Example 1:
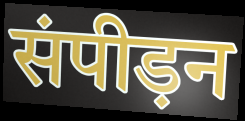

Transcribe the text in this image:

संपीड़न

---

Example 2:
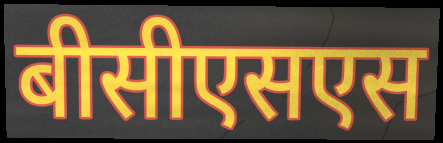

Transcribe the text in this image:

बीसीएसएस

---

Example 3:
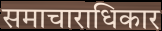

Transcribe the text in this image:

समाचाराधिकार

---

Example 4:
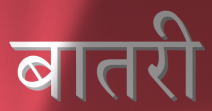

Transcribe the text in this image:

बातरी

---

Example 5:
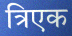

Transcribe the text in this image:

त्रिएक